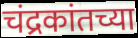
चंद्रकांतच्या